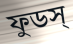
ফুডস্